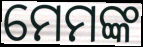
ମେମଙ୍କ